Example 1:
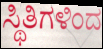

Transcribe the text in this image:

ಸ್ಥಿತಿಗಳಿಂದ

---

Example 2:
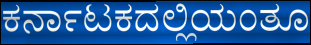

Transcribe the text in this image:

ಕರ್ನಾಟಕದಲ್ಲಿಯಂತೂ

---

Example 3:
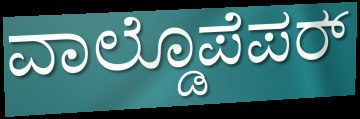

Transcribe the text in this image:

ವಾಲ್ಡೊಪೆಪರ್‍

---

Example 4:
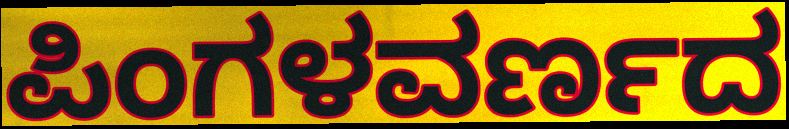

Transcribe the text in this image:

ಪಿಂಗಳವರ್ಣದ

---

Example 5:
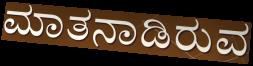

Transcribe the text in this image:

ಮಾತನಾಡಿರುವ